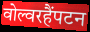
वोल्वरहैंपटन